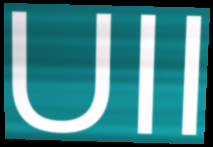
UII